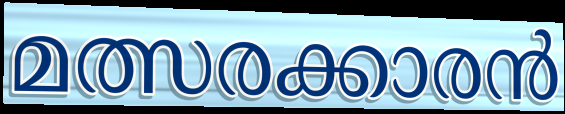
മത്സരക്കാരൻ